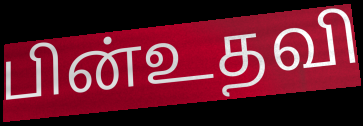
பின்உதவி